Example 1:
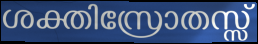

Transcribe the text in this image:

ശക്തിസ്രോതസ്സ്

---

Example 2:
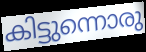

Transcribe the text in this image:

കിട്ടുന്നൊരു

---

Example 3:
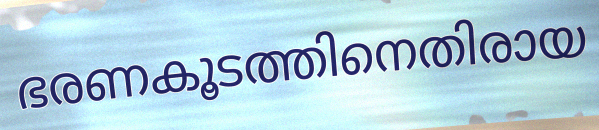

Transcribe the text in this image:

ഭരണകൂടത്തിനെതിരായ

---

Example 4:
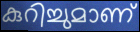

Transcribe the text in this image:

കുറിച്ചുമാണ്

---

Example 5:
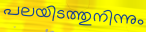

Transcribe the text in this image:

പലയിടത്തുനിന്നും